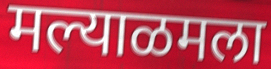
मल्याळमला